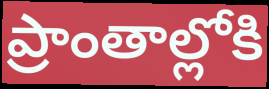
ప్రాంతాల్లోకి